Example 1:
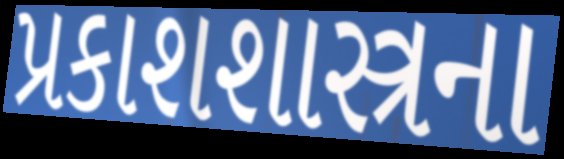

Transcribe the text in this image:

પ્રકાશશાસ્ત્રના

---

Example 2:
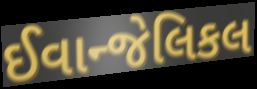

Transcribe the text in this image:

ઈવાન્જેલિકલ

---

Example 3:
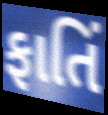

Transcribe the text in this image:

ફાતિં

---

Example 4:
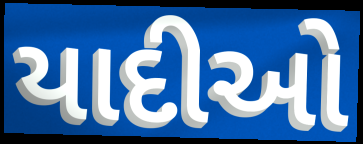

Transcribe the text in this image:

યાદીઓ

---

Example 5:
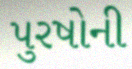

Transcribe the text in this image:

પુરષોની